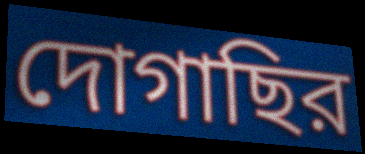
দোগাছির